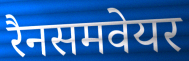
रैनसमवेयर